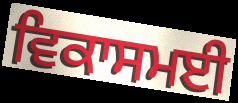
ਵਿਕਾਸਮਈ